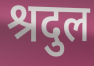
श्रदुल